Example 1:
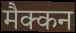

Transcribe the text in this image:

मैक्कन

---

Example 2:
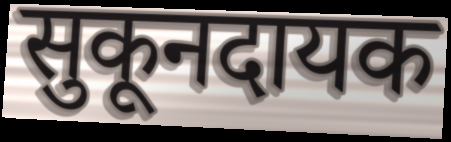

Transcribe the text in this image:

सुकूनदायक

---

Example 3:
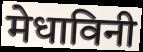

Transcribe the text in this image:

मेधाविनी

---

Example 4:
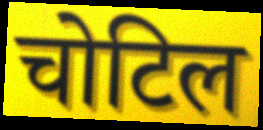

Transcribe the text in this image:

चोटिल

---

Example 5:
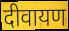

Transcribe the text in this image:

दीवायण